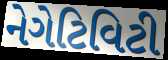
નેગેટિવિટી